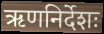
ऋणनिर्देशः